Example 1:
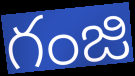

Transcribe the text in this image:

గంజి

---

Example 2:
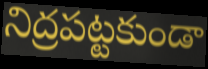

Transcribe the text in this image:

నిద్రపట్టకుండా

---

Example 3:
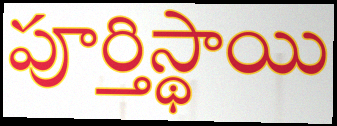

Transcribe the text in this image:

పూర్తిస్థాయి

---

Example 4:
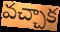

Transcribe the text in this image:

వచ్చాక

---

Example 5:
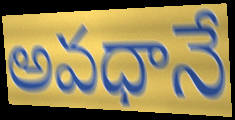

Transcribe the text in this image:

అవధానే